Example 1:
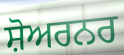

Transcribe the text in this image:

ਸ਼ੋਅਰਨਰ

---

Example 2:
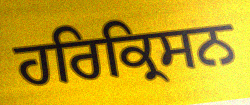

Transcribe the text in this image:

ਹਰਿਕ੍ਰਿਸਨ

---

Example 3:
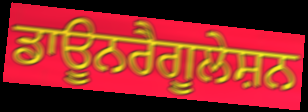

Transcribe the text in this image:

ਡਾਊਨਰੈਗੂਲੇਸ਼ਨ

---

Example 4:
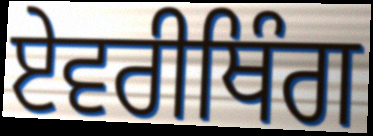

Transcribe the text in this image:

ਏਵਰੀਥਿੰਗ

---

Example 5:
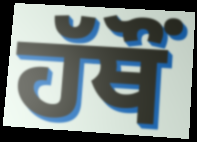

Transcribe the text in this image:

ਹੱਥੌਂ